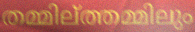
തമ്മില്ത്തമ്മിലും